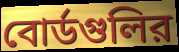
বোর্ডগুলির